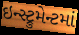
ઇન્સ્ટ્રુમેન્ટમાં